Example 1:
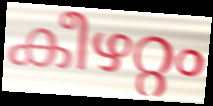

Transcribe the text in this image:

കീഴറ്റം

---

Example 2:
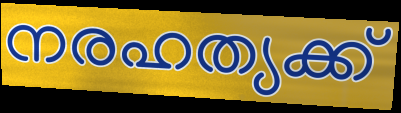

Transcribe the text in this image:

നരഹത്യക്ക്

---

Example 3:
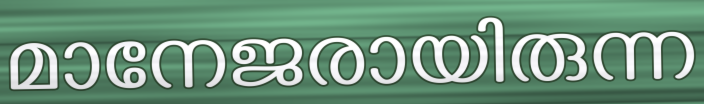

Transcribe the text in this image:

മാനേജരായിരുന്ന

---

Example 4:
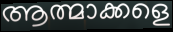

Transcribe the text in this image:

ആത്മാക്കളെ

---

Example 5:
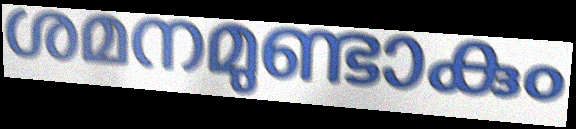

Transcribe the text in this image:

ശമനമുണ്ടാകും